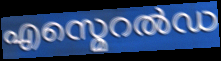
എസ്മെറൽഡ